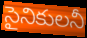
సైనికులనీ